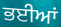
ਭਈਆਂ